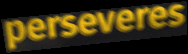
perseveres